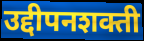
उद्दीपनशक्ती